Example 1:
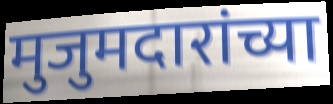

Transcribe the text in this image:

मुजुमदारांच्या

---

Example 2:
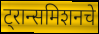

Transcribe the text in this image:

ट्रान्समिशनचे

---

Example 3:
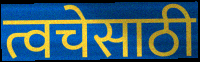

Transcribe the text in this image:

त्वचेसाठी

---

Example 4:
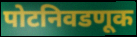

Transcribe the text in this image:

पोटनिवडणूक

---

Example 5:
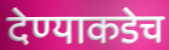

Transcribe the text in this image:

देण्याकडेच